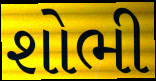
શોભી